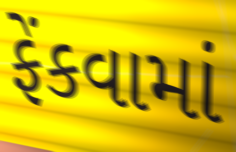
ફેંકવામાં